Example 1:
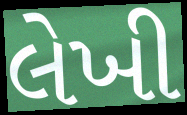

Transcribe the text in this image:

લેખી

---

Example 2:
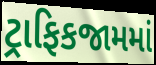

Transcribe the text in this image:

ટ્રાફિકજામમાં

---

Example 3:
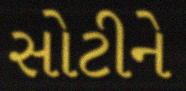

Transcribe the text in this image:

સોટીને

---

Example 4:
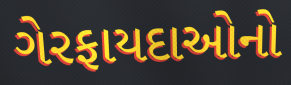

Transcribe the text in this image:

ગેરફાયદાઓનો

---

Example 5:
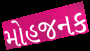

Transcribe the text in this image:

મોહજનક